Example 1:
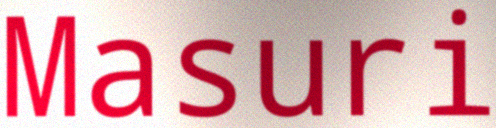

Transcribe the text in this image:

Masuri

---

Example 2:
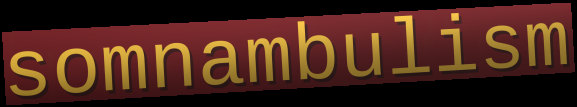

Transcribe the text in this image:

somnambulism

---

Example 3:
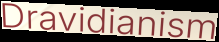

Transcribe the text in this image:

Dravidianism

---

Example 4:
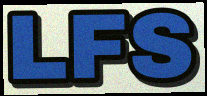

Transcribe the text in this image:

LFS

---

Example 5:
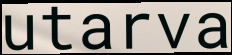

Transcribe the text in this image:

utarva